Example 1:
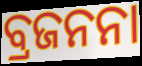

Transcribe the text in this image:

ବ୍ରଜନନା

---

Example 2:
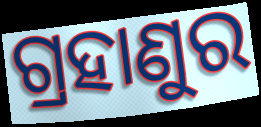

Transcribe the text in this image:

ଗ୍ରହାଣୁର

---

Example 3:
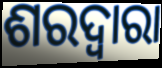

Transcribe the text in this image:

ଶରଦ୍ୱାରା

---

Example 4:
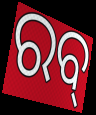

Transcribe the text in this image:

ରବ୍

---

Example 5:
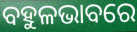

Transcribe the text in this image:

ବହୁଳଭାବରେ